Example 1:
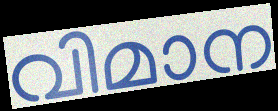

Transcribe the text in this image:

വിമാന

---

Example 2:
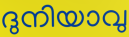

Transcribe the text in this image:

ദുനിയാവു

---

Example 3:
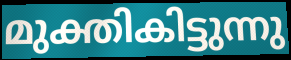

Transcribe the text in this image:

മുക്തികിട്ടുന്നു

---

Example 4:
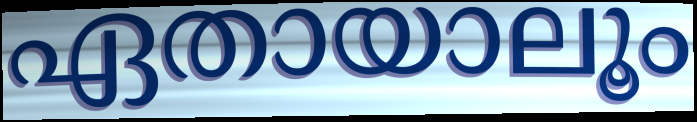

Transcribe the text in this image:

ഏതായാലൂം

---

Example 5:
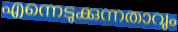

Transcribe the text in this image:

എന്നെടുക്കുന്നതാവും